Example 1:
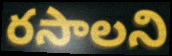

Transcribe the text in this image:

రసాలని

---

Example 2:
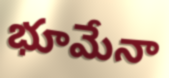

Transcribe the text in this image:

భూమేనా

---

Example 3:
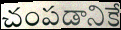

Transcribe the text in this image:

చంపడానికే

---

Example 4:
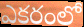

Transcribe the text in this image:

ఎకరంలో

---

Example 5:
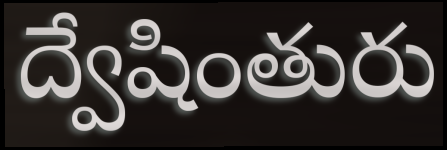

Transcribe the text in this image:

ద్వేషింతురు